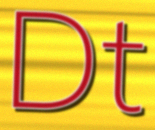
Dt